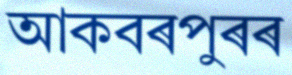
আকবৰপুৰৰ